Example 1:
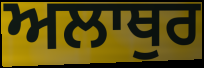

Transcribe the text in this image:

ਅਲਾਥੁਰ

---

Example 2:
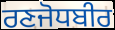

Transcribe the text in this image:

ਰਣਜੋਧਬੀਰ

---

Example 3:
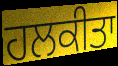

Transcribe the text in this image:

ਹਲਕੀਤਾ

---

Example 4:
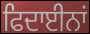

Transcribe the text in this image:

ਫਿਦਾਈਨਾਂ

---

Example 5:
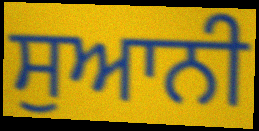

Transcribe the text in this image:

ਸੁਆਨੀ